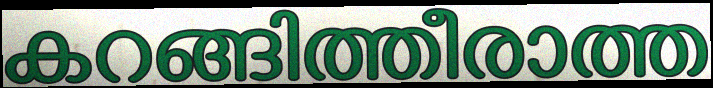
കറങ്ങിത്തീരാത്ത